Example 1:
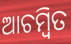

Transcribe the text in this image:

ଆଚମ୍ବିତ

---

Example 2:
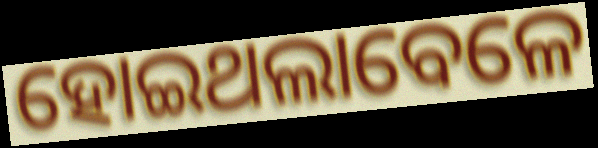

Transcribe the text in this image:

ହୋଇଥଲାବେଳେ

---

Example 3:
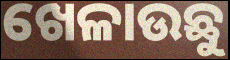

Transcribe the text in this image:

ଖେଳାଉଛୁ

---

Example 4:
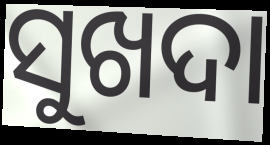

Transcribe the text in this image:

ସୁଖଦା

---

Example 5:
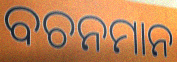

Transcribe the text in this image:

ବଚନମାନ